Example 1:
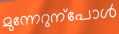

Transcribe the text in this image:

മുന്നേറുന്പോൾ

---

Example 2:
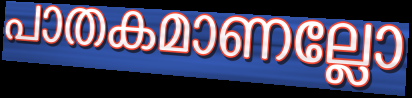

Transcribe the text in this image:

പാതകമാണല്ലോ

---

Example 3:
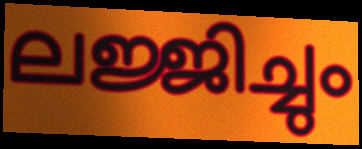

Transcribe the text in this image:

ലജ്ജിച്ചും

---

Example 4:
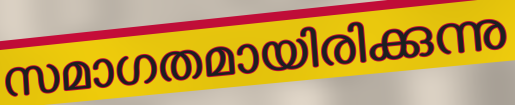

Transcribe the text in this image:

സമാഗതമായിരിക്കുന്നു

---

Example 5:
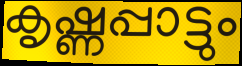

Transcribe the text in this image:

കൃഷ്ണപ്പാട്ടും